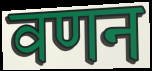
वणन